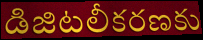
డిజిటలీకరణకు